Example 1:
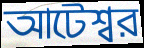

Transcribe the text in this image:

আটেশ্বর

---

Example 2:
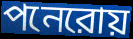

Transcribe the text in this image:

পনেরোয়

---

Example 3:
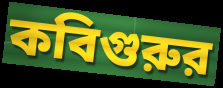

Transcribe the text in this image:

কবিগুরুর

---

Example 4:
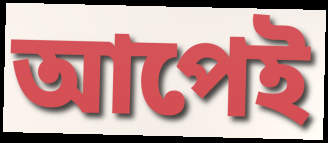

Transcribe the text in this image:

আপেই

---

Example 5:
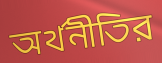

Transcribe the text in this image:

অর্থনীতির